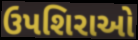
ઉપશિરાઓ